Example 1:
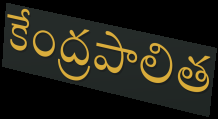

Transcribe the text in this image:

కేంద్రపాలిత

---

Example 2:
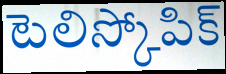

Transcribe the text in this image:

టెలిస్కోపిక్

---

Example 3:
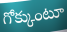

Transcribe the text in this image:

గోక్కుంటూ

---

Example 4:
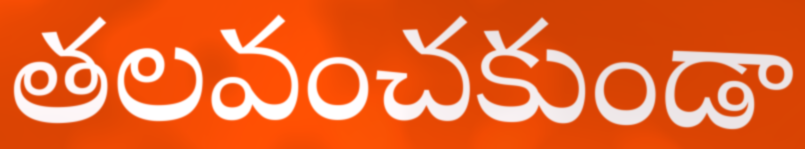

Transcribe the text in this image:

తలవంచకుండా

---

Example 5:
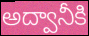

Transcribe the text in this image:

అద్వానీకి